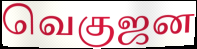
வெகுஜன